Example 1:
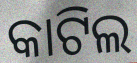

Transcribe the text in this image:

କାଟିଲ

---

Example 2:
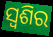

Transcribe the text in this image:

ସ୍ଵଶିର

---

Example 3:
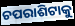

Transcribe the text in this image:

ଚପରାଶିଟାକୁ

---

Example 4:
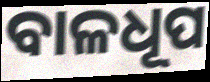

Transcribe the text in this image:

ବାଳଧୂପ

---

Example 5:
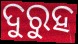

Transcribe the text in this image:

ଦୁରୁହ